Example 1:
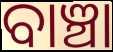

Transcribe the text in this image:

ବାଞ୍ଚା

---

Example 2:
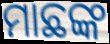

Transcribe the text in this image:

ମାଛଙ୍କ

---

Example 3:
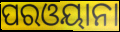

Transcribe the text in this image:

ପରଓୟାନା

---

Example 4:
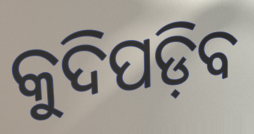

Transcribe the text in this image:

କୁଦିପଡ଼ିବ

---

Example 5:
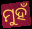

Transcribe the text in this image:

ମୁହଁ